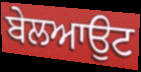
ਬੇਲਆਉਟ